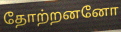
தோற்றனனோ